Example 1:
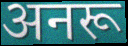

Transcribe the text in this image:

अनरू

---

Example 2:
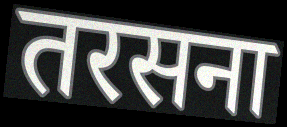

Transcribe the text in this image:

तरसना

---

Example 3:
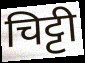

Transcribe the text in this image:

चिट्टी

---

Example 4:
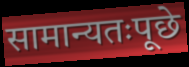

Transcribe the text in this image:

सामान्यतःपूछे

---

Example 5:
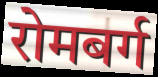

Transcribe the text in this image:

रोमबर्ग